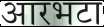
आरभटा